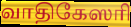
வாதிகேஸரி